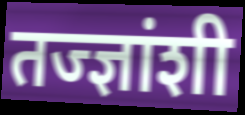
तज्ज्ञांशी